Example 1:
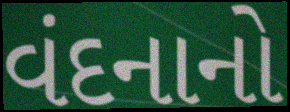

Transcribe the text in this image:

વંદનાનો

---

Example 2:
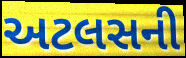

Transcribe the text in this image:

અટલસની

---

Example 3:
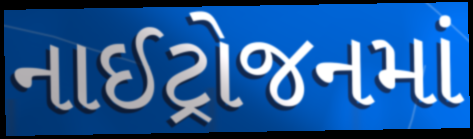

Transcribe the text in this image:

નાઈટ્રોજનમાં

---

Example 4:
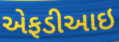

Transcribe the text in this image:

એફડીઆઇ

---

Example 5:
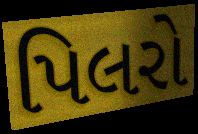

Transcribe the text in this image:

પિલરો